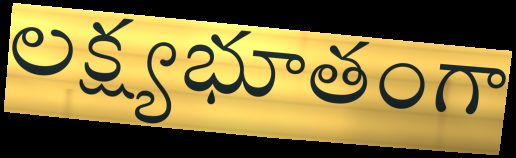
లక్ష్యభూతంగా